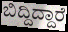
ಬಿದ್ದಿದ್ದಾರೆ